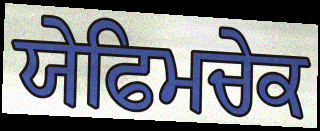
ਯੇਫਿਮਚੇਕ